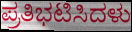
ಪ್ರತಿಭಟಿಸಿದಳು